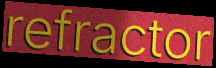
refractor